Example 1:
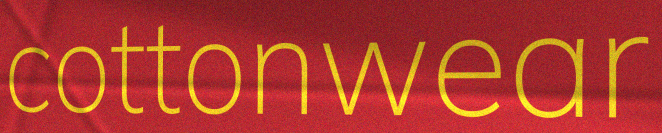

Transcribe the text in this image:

cottonwear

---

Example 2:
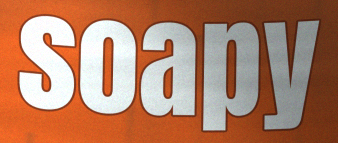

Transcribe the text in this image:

soapy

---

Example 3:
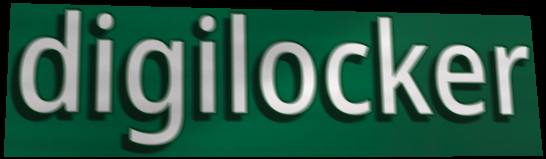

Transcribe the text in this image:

digilocker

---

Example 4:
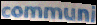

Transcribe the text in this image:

communi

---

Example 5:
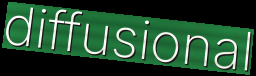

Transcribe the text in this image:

diffusional